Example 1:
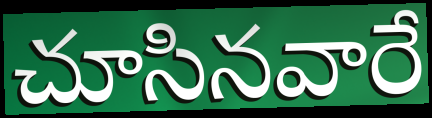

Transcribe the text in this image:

చూసినవారే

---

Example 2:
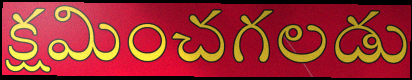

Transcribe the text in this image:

క్షమించగలడు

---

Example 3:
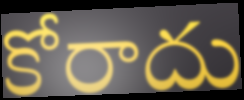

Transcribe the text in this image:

కోరాదు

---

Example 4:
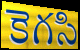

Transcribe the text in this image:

కెగసి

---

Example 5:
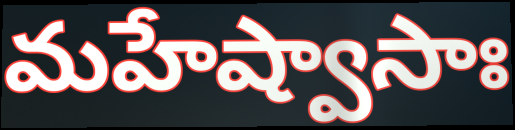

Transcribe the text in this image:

మహేష్వాసాః